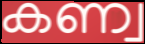
കണ്വ